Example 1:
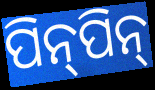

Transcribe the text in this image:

ପିନ୍‍ପିନ୍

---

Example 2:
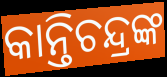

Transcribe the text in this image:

କାନ୍ତିଚନ୍ଦ୍ରଙ୍କ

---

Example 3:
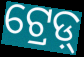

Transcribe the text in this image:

ଟ୍ରେଡ଼୍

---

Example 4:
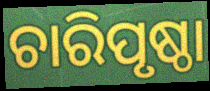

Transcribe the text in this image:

ଚାରିପୃଷ୍ଠା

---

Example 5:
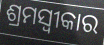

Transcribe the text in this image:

ଶ୍ରମସ୍ୱୀକାର